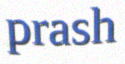
prash